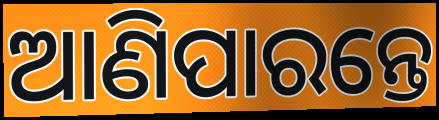
ଆଣିପାରନ୍ତେ